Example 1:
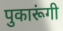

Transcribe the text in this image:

पुकारूंगी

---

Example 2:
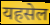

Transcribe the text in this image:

यहसेल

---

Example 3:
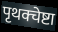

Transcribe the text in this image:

पृथक्चेष्टा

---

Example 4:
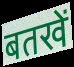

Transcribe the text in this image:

बतखें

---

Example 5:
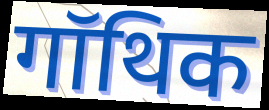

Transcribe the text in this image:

गॉथिक